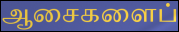
ஆசைகளைப்